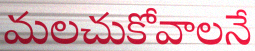
మలచుకోవాలనే